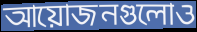
আয়োজনগুলোও